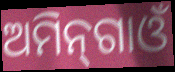
ଅମିନ୍‌ଗାଓଁ